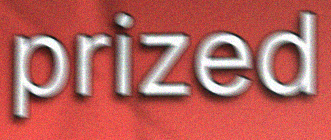
prized